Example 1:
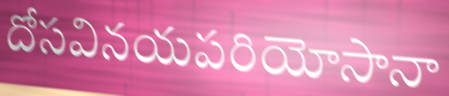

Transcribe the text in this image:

దోసవినయపరియోసానా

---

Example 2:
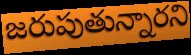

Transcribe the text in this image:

జరుపుతున్నారని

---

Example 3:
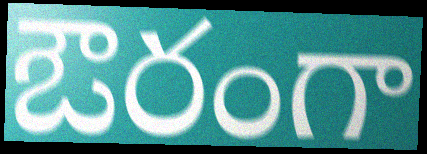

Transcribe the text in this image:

ఔరంగా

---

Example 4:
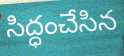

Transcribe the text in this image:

సిద్ధంచేసిన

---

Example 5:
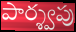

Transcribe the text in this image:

పార్శ్వపు